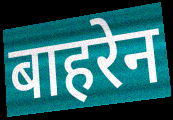
बाहरेन